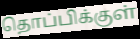
தொப்பிக்குள்